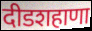
दीडशहाणा